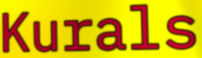
Kurals